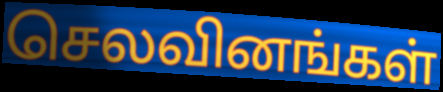
செலவினங்கள்